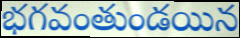
భగవంతుండయిన